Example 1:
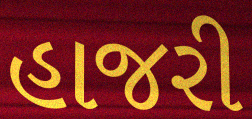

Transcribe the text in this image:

હાજરી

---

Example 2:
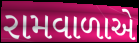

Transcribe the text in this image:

રામવાળાએ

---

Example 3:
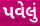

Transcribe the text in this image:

પવેલું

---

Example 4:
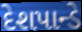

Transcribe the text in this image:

દેશપાન્ડે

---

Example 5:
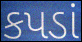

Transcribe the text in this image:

કપડાં